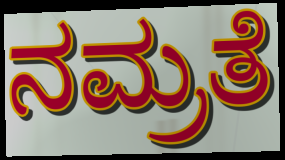
ನಮ್ರತೆ